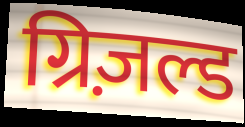
ग्रिज़ल्ड